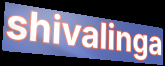
shivalinga